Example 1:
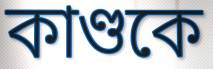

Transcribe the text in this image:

কাণ্ডকে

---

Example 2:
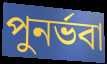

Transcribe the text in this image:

পুনর্ভবা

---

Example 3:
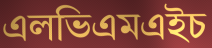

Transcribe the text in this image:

এলভিএমএইচ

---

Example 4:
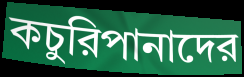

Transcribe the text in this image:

কচুরিপানাদের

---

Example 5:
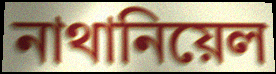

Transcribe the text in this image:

নাথানিয়েল